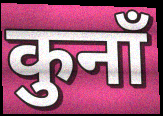
कुनाँ